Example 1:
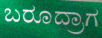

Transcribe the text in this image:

ಬರೂದ್ರಾಗ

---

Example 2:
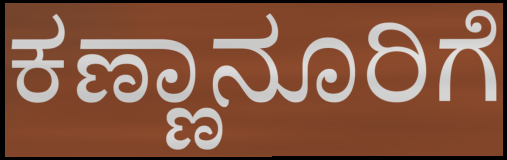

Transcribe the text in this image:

ಕಣ್ಣಾನೂರಿಗೆ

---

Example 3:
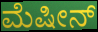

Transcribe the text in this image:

ಮೆಷೀನ್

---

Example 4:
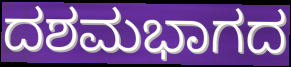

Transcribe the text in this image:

ದಶಮಭಾಗದ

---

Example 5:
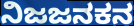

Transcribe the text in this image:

ನಿಜಜನಕನ